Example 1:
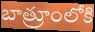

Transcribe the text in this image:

బాత్రూంలోకి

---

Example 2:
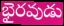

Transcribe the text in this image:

భైరవుడు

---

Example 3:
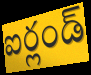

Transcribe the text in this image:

ఐర్లండ్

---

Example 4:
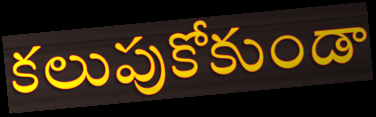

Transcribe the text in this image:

కలుపుకోకుండా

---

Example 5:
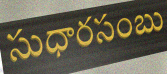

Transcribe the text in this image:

సుధారసంబు